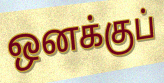
ஒனக்குப்